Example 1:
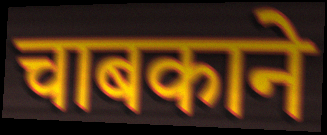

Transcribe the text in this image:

चाबकाने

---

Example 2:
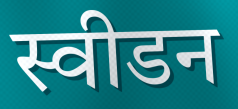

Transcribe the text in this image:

स्वीडन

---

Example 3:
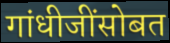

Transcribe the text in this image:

गांधीजींसोबत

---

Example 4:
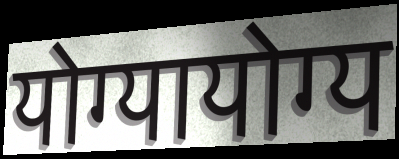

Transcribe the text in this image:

योग्यायोग्य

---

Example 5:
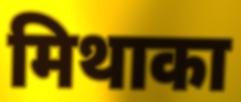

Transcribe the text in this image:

मिथाका